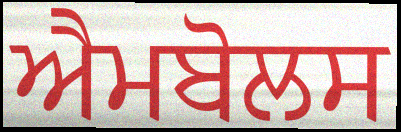
ਐਮਬੋਲਸ